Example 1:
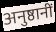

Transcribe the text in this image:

अनुष्ठानीं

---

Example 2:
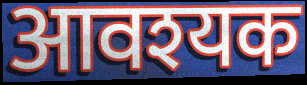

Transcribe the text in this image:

आवश्‍यक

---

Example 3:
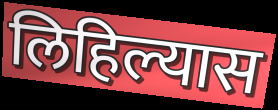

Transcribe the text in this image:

लिहिल्यास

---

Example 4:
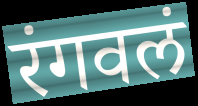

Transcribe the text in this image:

रंगवलं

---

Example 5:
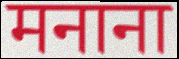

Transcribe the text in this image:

मनाना